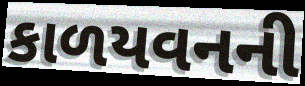
કાળયવનની